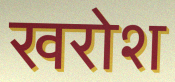
खरोश